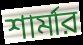
শার্মার